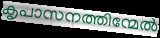
കൃപാസനത്തിന്മേൽ